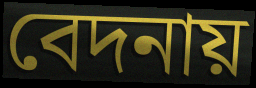
বেদনায়